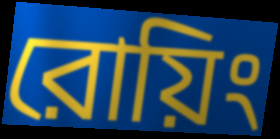
রোয়িং